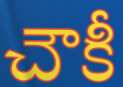
చౌకీ